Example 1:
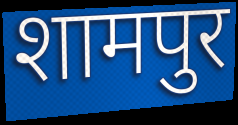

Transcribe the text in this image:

शामपुर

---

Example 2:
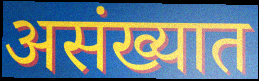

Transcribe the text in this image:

असंख्यात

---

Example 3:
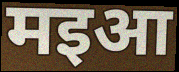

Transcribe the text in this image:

मइआ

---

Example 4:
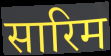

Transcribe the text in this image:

सारिम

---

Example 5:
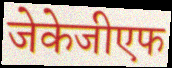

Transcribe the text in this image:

जेकेजीएफ